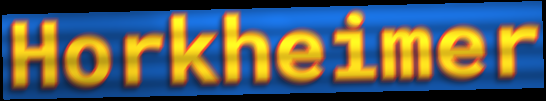
Horkheimer